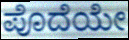
ಪೊದೆಯೇ